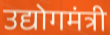
उद्योगमंत्री